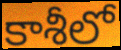
కాశీలో